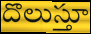
దొలుస్తూ